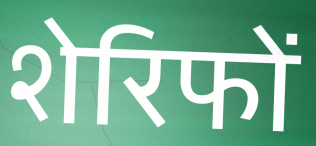
शेरिफों